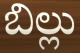
బిల్లు